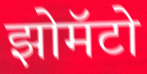
झोमॅटो